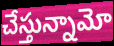
చేస్తున్నామో